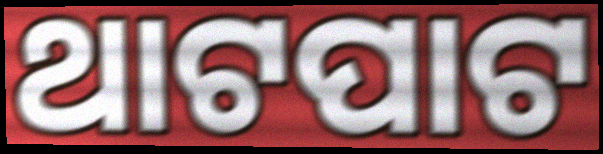
ଥାଟପାଟ